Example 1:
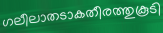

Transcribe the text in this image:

ഗലീലാതടാകതീരത്തുകൂടി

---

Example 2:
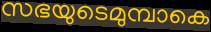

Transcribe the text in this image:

സഭയുടെമുമ്പാകെ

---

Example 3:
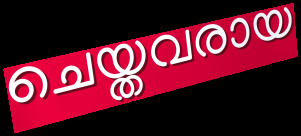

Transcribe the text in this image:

ചെയ്തവരായ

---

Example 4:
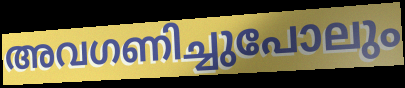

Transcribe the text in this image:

അവഗണിച്ചുപോലും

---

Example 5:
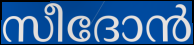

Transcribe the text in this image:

സീദോൻ